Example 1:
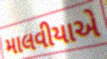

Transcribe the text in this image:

માલવીયાએ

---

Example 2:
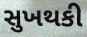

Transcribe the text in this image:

સુખથકી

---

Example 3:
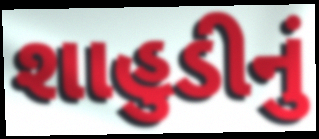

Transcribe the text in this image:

શાહુડીનું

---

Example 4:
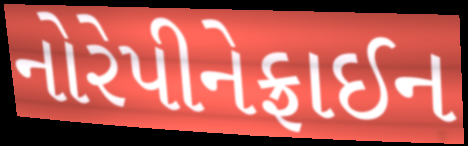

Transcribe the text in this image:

નોરેપીનેફ્રાઈન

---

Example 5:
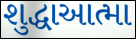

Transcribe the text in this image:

શુદ્ધાઆત્મા